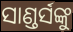
ସାଣ୍ଡର୍ସଙ୍କୁ